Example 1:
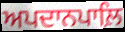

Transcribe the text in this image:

ਅਪਦਾਨਪਾਲ਼ਿ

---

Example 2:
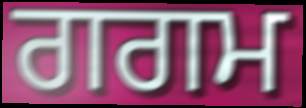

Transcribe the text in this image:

ਗਗਮ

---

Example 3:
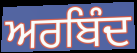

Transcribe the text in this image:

ਅਰਬਿੰਦ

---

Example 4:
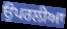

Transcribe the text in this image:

ਉਪਰਲੀਆ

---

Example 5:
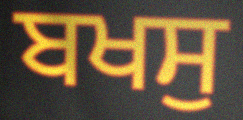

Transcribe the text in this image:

ਬਖਸੁ